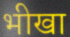
भीखा